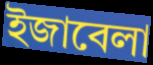
ইজাবেলা